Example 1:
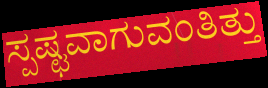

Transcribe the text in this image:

ಸ್ಪಷ್ಟವಾಗುವಂತಿತ್ತು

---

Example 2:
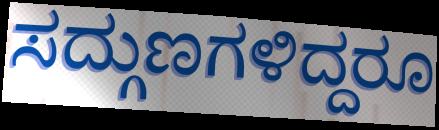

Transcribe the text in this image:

ಸದ್ಗುಣಗಳಿದ್ದರೂ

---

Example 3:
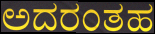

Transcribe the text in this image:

ಅದರಂತಹ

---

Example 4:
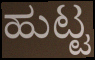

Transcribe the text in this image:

ಹುಟ್ಟ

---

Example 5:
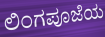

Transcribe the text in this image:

ಲಿಂಗಪೂಜೆಯ